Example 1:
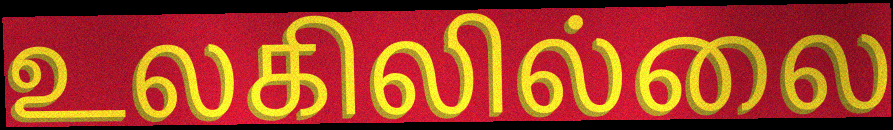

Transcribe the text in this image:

உலகிலில்லை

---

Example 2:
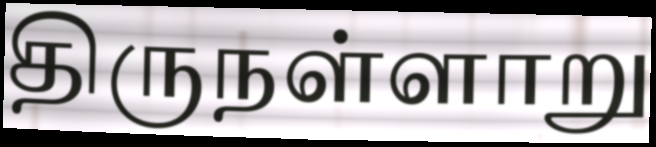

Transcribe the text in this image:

திருநள்ளாறு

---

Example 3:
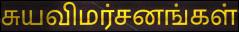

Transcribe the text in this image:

சுயவிமர்சனங்கள்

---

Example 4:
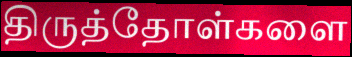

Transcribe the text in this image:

திருத்தோள்களை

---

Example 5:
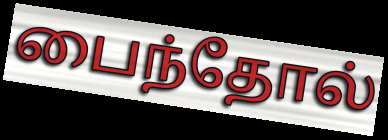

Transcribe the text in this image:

பைந்தோல்